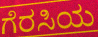
ಗೆರಸಿಯ